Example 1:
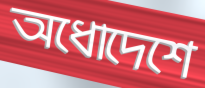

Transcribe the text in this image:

অধোদেশে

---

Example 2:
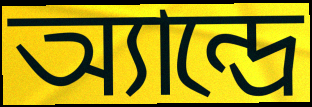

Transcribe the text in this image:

অ্যান্দ্রে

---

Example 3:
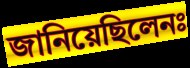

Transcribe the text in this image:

জানিয়েছিলেনঃ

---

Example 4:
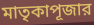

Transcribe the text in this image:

মাতৃকাপূজার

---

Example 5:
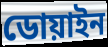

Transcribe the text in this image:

ডোয়াইন